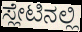
ಸ್ಲೇಟಿನಲ್ಲಿ